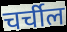
चर्चील